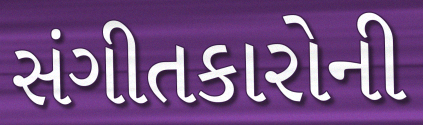
સંગીતકારોની